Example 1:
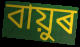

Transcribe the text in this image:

বায়ুৰ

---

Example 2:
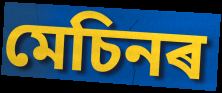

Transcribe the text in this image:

মেচিনৰ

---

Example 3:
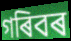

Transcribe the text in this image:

গৰিবৰ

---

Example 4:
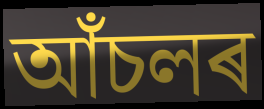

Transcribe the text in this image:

আঁচলৰ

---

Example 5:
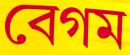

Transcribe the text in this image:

বেগম